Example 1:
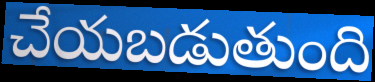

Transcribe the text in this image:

చేయబడుతుంది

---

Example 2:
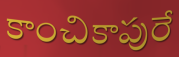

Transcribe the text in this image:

కాంచికాపురే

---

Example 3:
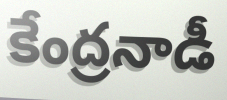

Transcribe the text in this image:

కేంద్రనాడీ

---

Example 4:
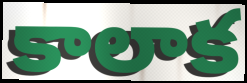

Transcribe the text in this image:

కాలాక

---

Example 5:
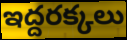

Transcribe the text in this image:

ఇద్దరక్కలు